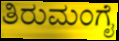
ತಿರುಮಂಗೈ